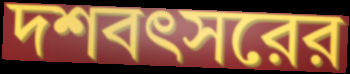
দশবৎসরের